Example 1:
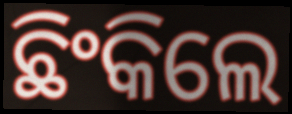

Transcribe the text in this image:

ଛିଂକିଲେ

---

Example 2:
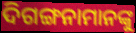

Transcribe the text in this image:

ଦିଗଙ୍ଗନାମାନଙ୍କୁ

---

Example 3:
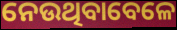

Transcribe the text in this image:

ନେଉଥିବାବେଳେ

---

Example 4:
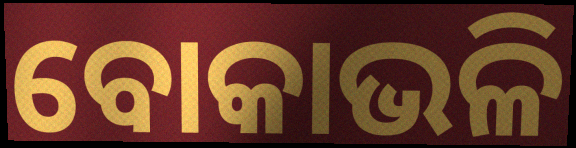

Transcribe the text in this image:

ବୋକାଭଳି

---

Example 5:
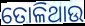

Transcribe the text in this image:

ତୋଳିଥାଉ